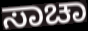
ಸಾಚಾ